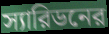
স্যারিডনের